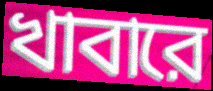
খাবারে